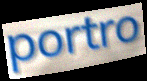
portro